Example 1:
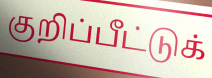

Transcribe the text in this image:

குறிப்பீட்டுக்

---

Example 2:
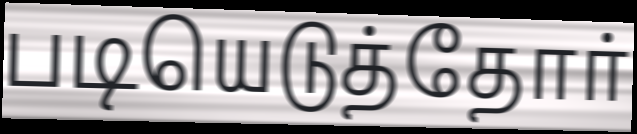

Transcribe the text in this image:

படியெடுத்தோர்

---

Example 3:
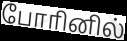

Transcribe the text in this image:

போரினில்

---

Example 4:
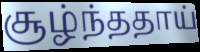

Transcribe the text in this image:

சூழ்ந்ததாய்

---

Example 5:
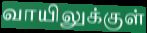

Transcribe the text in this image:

வாயிலுக்குள்